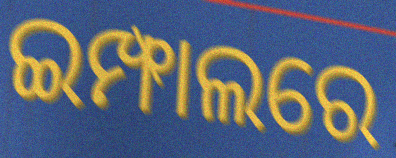
ଇମ୍ଫାଲରେ